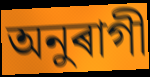
অনুৰাগী